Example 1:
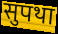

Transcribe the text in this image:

सुपथा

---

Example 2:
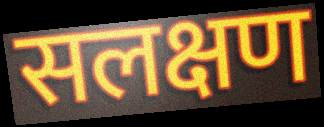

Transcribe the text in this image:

सलक्षण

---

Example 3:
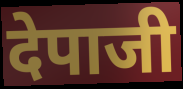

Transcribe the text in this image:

देपाजी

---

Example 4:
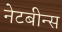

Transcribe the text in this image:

नेटबीन्स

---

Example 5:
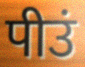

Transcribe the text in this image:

पीउं